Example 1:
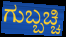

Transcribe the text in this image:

ಗುಬ್ಬಚ್ಚಿ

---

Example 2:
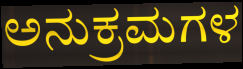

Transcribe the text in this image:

ಅನುಕ್ರಮಗಳ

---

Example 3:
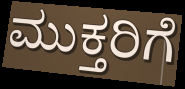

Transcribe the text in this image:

ಮುಕ್ತರಿಗೆ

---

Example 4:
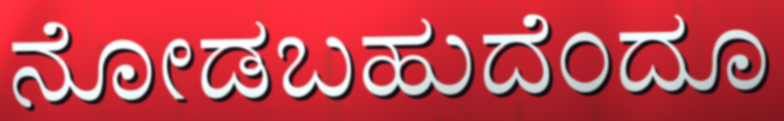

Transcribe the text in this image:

ನೋಡಬಹುದೆಂದೂ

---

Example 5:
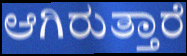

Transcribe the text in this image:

ಆಗಿರುತ್ತಾರೆ